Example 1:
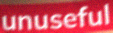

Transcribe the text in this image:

unuseful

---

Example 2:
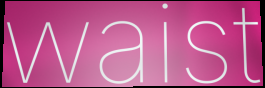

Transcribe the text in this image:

waist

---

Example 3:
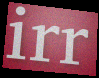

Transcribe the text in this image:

irr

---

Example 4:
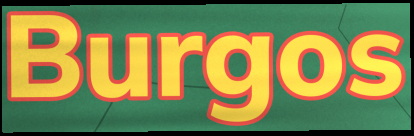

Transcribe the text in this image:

Burgos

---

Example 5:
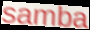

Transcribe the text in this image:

samba